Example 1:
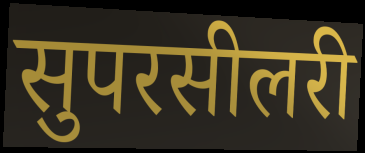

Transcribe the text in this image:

सुपरसीलरी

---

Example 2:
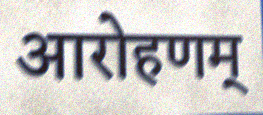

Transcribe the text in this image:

आरोहणम्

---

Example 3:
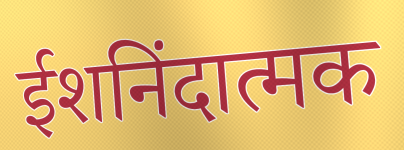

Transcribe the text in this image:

ईशनिंदात्मक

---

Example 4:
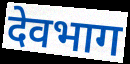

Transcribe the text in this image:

देवभाग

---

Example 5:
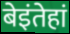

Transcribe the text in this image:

बेइंतेहां